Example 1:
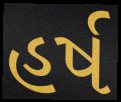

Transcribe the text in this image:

હર્ષ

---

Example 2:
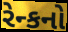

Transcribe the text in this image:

રેન્કનો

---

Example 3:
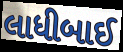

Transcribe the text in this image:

લાધીબાઈ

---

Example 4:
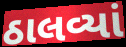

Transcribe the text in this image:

ઠાલવ્યાં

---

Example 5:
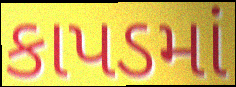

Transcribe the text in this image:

કાપડમાં